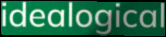
idealogical